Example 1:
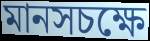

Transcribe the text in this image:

মানসচক্ষে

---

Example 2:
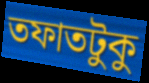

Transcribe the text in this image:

তফাতটুকু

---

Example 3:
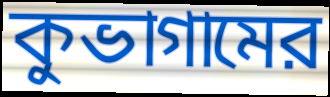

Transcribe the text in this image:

কুভাগামের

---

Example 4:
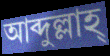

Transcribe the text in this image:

আব্দুল্লাহ্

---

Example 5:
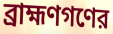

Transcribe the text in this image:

ব্রাহ্মণগণের